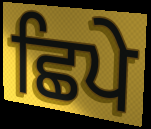
ਛਿਪੇ